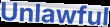
Unlawful